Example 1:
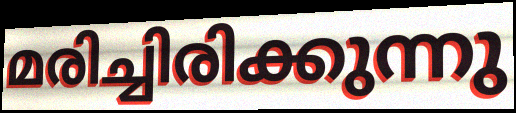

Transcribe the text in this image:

മരിച്ചിരിക്കുന്നു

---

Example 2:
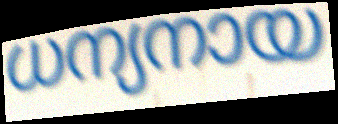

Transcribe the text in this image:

ധന്യനായ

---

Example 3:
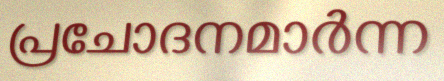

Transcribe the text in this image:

പ്രചോദനമാർന്ന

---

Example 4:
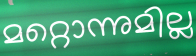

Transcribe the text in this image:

മറ്റൊന്നുമില്ല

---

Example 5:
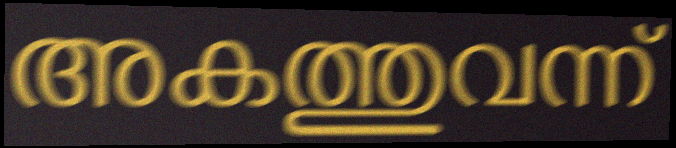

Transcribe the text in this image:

അകത്തുവന്ന്